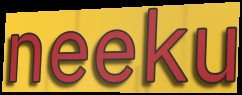
neeku